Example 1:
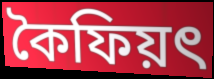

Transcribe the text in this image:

কৈফিয়ৎ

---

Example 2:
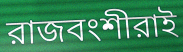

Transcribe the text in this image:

রাজবংশীরাই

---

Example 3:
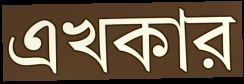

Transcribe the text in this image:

এখকার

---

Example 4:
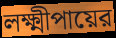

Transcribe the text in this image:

লক্ষ্মীপায়ের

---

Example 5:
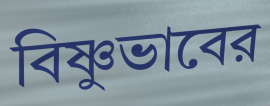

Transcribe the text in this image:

বিষ্ণুভাবের